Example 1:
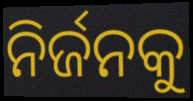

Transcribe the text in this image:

ନିର୍ଜନକୁ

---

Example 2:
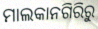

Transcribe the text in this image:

ମାଲକାନଗିରିରୁ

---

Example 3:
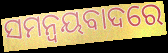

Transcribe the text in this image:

ସମନ୍ୱୟବାଦରେ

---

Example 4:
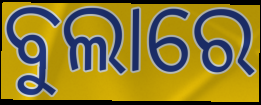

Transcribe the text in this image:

ବୁଲାରେ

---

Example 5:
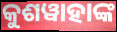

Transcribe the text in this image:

କୁଶୱାହାଙ୍କ